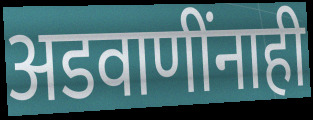
अडवाणींनाही